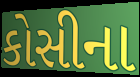
કોસીના